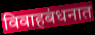
विवाहबंधनात